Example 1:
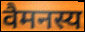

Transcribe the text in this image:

वैमनस्य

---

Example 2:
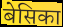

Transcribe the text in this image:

बेसिका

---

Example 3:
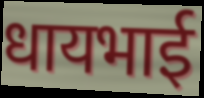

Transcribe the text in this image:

धायभाई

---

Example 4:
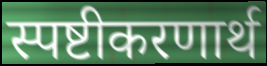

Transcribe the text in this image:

स्पष्टीकरणार्थ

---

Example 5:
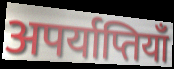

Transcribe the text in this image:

अपर्याप्तियाँ